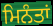
ਮਿਨੰਤਾਂ